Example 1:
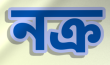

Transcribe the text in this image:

নক্র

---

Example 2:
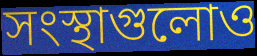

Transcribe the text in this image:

সংস্থাগুলোও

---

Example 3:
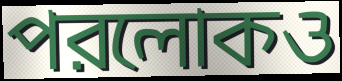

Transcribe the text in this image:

পরলোকও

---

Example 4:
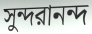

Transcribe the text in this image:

সুন্দরানন্দ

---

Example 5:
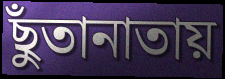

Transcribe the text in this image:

ছুঁতানাতায়